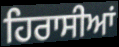
ਹਿਰਾਸੀਆਂ